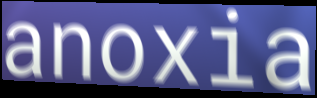
anoxia